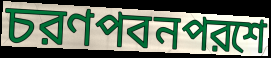
চরণপবনপরশে